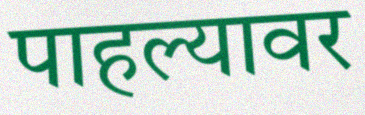
पाहल्यावर